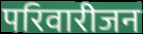
परिवारीजन